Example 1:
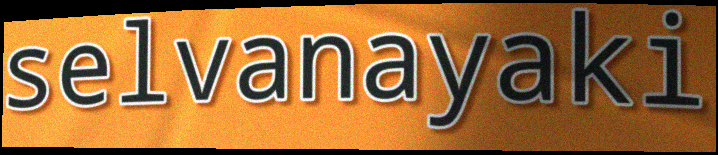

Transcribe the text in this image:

selvanayaki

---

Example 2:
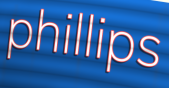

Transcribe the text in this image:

phillips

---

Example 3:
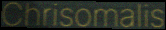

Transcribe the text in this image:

Chrisomalis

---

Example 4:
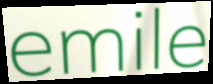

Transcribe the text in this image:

emile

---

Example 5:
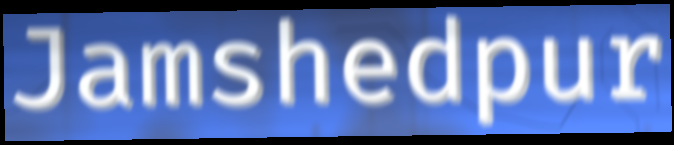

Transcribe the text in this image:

Jamshedpur